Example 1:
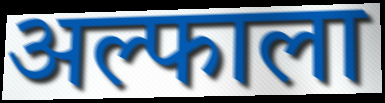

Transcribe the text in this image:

अल्फाला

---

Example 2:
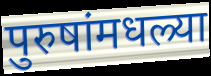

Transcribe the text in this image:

पुरुषांमधल्या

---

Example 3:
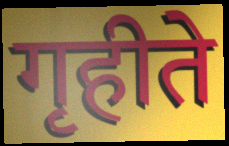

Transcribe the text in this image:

गृहीते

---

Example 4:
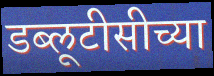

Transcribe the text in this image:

डब्लूटीसीच्या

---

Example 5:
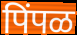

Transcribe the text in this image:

पिंपळ